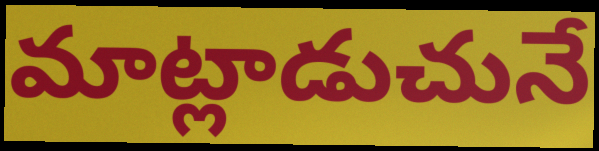
మాట్లాడుచునే